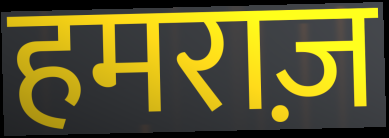
हमराज़